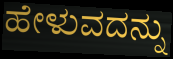
ಹೇಳುವದನ್ನು